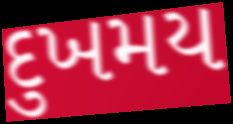
દુખમય